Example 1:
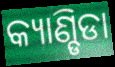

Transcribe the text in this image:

କ୍ୟାଣ୍ଡିଡା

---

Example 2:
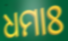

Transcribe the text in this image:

ଧମାଃ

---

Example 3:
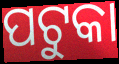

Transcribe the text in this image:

ପଟୁକା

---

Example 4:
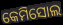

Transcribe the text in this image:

କେମିସୋଲ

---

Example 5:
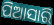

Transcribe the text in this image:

ପିଆସାରି